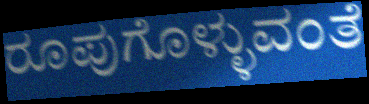
ರೂಪುಗೊಳ್ಳುವಂತೆ